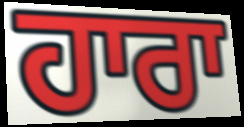
ਹਾਰਾ